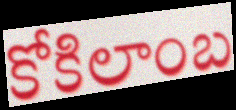
కోకిలాంబ